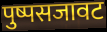
पुष्पसजावट